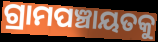
ଗ୍ରାମପଞ୍ଚାୟତକୁ